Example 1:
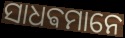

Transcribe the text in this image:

ସାଧଵମାନେ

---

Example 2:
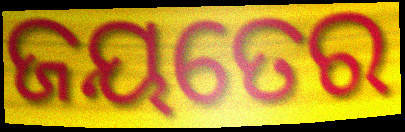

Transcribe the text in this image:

ଜୟତେର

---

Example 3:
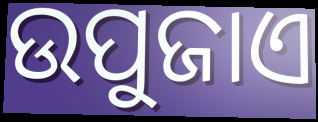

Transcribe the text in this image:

ଉପୁଜାଏ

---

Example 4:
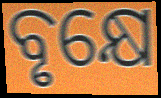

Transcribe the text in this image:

ବୃକ୍ଷେ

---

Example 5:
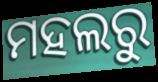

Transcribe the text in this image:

ମହଲରୁ